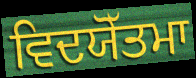
ਵਿਦਯੋੱਤਮਾ